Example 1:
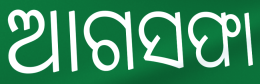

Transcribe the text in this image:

ଆଗସଫା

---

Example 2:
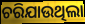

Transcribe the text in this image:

ଚରିଯାଉଥିଲା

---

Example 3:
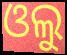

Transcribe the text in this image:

ଓଲୁ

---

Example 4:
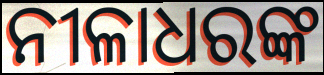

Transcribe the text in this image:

ନୀଳାଧରଙ୍କ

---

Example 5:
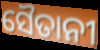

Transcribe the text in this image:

ସୈତାନୀ